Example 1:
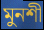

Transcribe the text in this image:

মুনশী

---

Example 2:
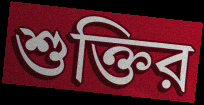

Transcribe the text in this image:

শুক্তির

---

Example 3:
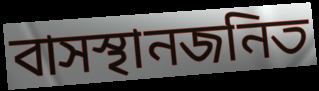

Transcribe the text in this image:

বাসস্থানজনিত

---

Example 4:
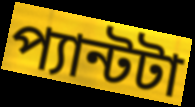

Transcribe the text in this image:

প্যান্টটা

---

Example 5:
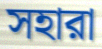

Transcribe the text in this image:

সহারা